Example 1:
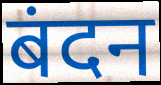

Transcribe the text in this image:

बंदन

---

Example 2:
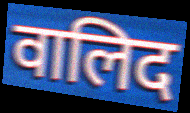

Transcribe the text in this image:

वालिद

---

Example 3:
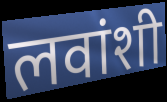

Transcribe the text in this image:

लवांशी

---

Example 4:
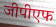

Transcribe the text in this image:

जीपीएफ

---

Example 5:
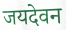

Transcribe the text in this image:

जयदेवन